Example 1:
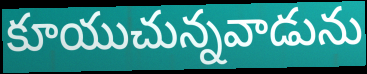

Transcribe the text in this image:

కూయుచున్నవాడును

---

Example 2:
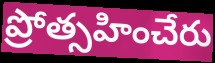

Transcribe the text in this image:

ప్రోత్సహించేరు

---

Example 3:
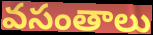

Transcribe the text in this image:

వసంతాలు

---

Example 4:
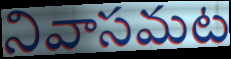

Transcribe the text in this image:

నివాసమట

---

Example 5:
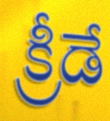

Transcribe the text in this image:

క్రీడే